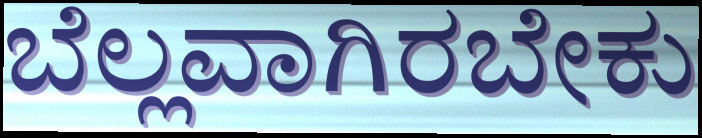
ಬೆಲ್ಲವಾಗಿರಬೇಕು